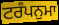
ਟਰੰਪਨੁਮਾ